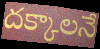
దక్కాలనే